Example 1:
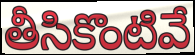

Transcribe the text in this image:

తీసికొంటివే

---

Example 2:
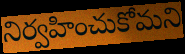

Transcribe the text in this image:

నిర్వహించుకోమని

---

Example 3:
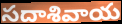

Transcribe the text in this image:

సదాశివాయ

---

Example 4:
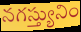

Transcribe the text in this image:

నగస్త్యునిం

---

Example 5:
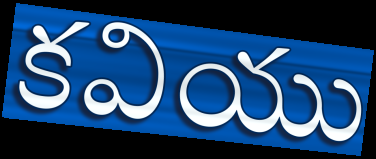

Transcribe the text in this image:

కవియు